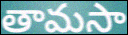
తామసా